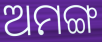
ଅମଙ୍ଗ